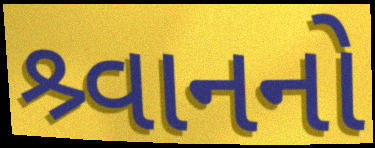
શ્ર્વાનનો